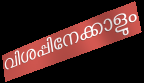
വിശപ്പിനേക്കാളും